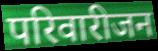
परिवारीजन